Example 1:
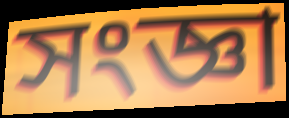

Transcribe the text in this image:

সংজ্ঞা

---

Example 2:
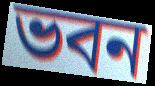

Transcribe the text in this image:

ভবন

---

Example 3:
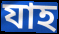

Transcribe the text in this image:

যাহ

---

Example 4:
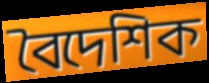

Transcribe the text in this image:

বৈদেশিক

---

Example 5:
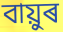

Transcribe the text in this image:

বায়ুৰ